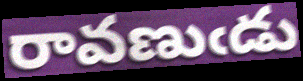
రావణుఁడు